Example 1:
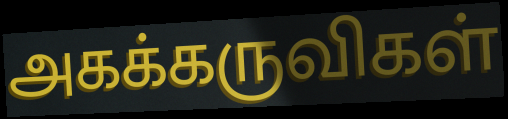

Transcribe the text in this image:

அகக்கருவிகள்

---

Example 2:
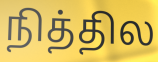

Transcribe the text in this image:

நித்தில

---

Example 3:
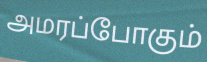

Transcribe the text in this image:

அமரப்போகும்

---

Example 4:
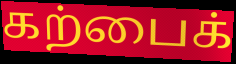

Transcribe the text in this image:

கற்பைக்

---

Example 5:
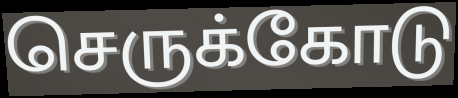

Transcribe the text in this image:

செருக்கோடு